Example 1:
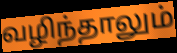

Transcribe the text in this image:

வழிந்தாலும்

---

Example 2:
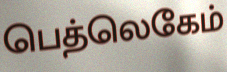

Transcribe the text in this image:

பெத்லெகேம்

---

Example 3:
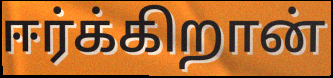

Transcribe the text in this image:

ஈர்க்கிறான்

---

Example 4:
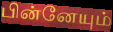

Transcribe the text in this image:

பின்னேயும்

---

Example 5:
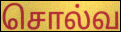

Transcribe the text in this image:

சொல்வ